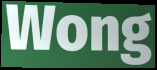
Wong